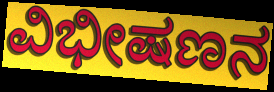
ವಿಭೀಷಣನ